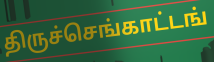
திருச்செங்காட்டங்